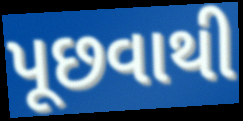
પૂછવાથી